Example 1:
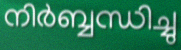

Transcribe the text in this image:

നിർബ്ബന്ധിച്ചു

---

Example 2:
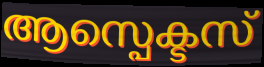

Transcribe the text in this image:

ആസ്പെക്ടസ്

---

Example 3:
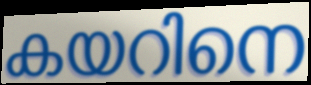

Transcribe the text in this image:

കയറിനെ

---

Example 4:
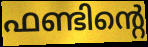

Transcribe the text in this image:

ഫണ്ടിന്റെ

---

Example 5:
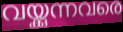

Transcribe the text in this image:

വയ്ക്കുന്നവരെ